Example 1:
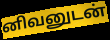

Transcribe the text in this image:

னிவனுடன்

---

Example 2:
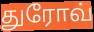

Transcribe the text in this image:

துரோவ்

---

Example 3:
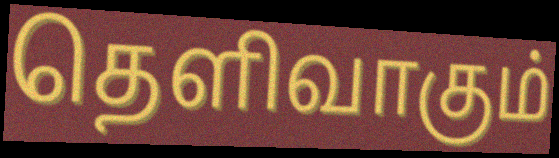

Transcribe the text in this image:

தெளிவாகும்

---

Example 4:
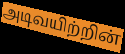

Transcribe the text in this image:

அடிவயிற்றின்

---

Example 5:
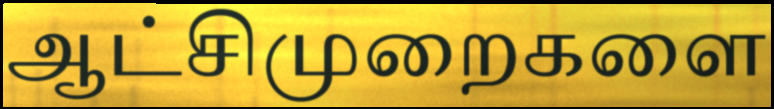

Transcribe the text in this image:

ஆட்சிமுறைகளை